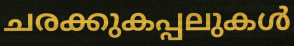
ചരക്കുകപ്പലുകൾ